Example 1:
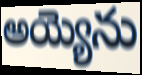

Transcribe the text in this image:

అయ్యెను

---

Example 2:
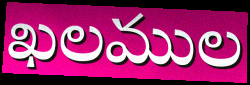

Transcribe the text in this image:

ఖలముల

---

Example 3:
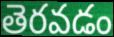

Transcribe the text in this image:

తెరవడం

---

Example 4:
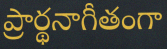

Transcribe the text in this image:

ప్రార్థనాగీతంగా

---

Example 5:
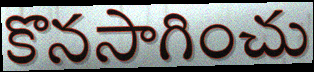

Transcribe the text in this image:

కొనసాగించు